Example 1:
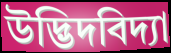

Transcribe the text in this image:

উদ্ভিদবিদ্যা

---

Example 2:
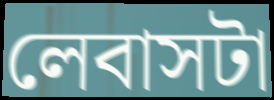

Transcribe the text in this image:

লেবাসটা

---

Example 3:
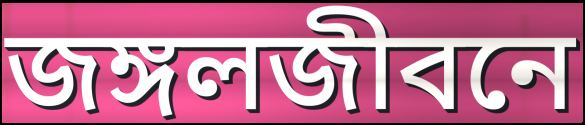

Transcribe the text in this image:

জঙ্গলজীবনে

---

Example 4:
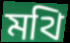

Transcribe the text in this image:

মথি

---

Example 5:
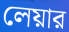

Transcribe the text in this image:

লেয়ার